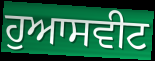
ਹੁਆਸਵੀਟ